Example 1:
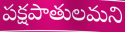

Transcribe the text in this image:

పక్షపాతులమని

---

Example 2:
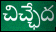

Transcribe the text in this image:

చిచ్ఛేద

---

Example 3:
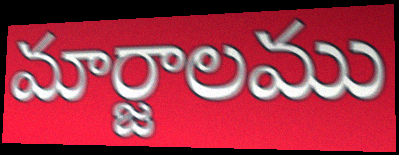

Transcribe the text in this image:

మార్జాలము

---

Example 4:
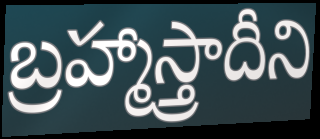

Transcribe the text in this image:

బ్రహ్మాస్త్రాదీని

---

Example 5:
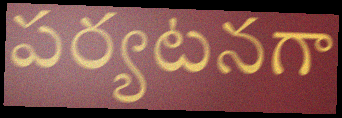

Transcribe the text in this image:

పర్యటనగా